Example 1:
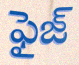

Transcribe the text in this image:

ఫైజ్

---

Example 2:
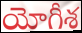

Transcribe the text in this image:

యోగీశ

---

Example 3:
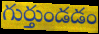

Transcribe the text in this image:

గుర్తుండడం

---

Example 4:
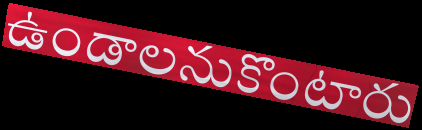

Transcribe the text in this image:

ఉండాలనుకొంటారు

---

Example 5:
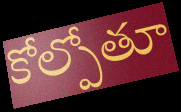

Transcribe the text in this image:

కోల్పోతూ